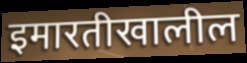
इमारतीखालील